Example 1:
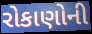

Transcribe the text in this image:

રોકાણોની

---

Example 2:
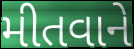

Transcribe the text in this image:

મીતવાને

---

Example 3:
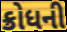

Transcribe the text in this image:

ક્રોધની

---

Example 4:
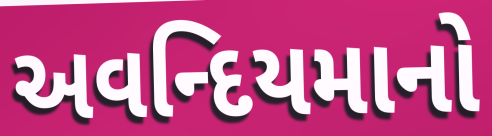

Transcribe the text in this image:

અવન્દિયમાનો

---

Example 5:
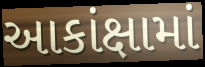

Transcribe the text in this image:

આકાંક્ષામાં